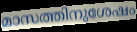
മാസത്തിനുശേഷം